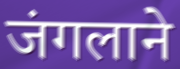
जंगलाने